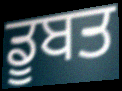
ਡੂਬਤ